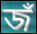
জঁ